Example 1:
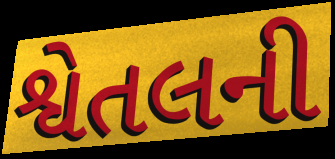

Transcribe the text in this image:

શ્વેતલની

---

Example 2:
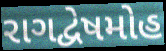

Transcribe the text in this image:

રાગદ્વેષમોહ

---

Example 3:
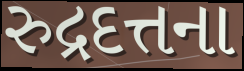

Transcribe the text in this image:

રુદ્રદત્તના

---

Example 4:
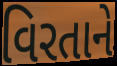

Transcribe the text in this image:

વિરતાને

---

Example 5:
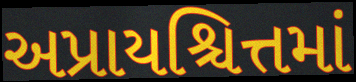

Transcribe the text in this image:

અપ્રાયશ્ચિત્તમાં